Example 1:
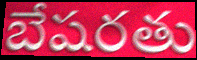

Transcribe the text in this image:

బేషరతు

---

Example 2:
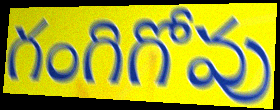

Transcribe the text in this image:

గంగిగోవు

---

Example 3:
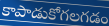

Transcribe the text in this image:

కాపాడుకోగలగడం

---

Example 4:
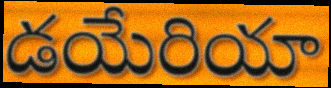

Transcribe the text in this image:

డయేరియా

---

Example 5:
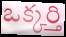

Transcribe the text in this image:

ఒక్కర్తి